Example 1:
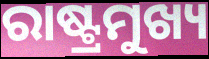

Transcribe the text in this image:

ରାଷ୍ଟ୍ରମୁଖ୍ୟ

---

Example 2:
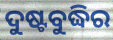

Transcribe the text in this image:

ଦୁଷ୍ଟବୁଦ୍ଧିର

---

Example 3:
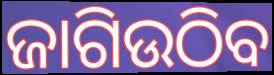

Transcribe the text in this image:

ଜାଗିଉଠିବ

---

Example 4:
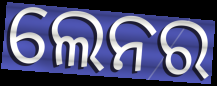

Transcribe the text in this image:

ଲେନର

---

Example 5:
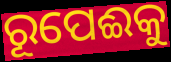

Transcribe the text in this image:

ରୂପେଈକୁ